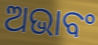
ଅଭାବଂ